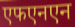
एफएनएन